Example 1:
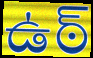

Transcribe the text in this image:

ఉఠ్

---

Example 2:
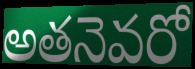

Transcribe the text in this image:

అతనెవరో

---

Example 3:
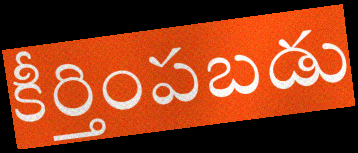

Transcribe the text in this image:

కీర్తింపబడు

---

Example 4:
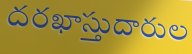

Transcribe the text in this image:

దరఖాస్తుదారుల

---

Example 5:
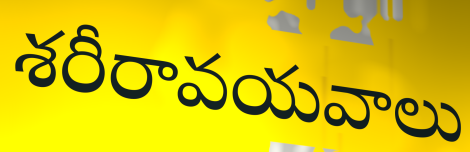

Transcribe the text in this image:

శరీరావయవాలు